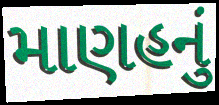
માણહનું